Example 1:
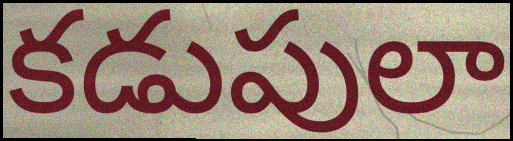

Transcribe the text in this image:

కడుపులా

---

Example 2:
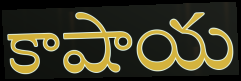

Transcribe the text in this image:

కాషాయ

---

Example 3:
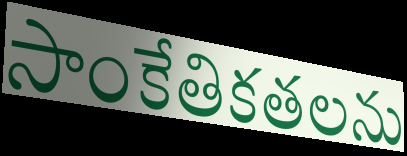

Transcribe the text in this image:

సాంకేతికతలను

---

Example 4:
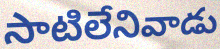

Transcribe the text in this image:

సాటిలేనివాడు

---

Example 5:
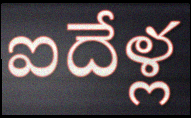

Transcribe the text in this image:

ఐదేళ్ల